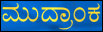
ಮುದ್ರಾಂಕ